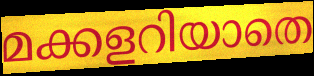
മക്കളറിയാതെ